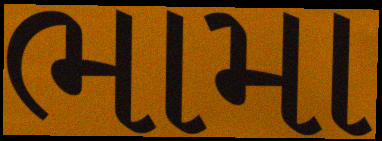
ભામા